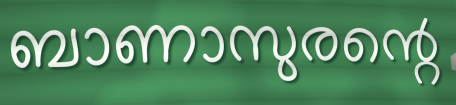
ബാണാസുരന്റെ